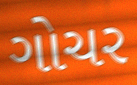
ગોચર